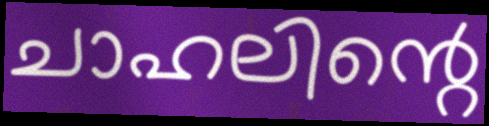
ചാഹലിന്റെ